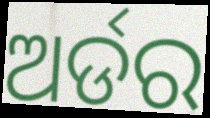
ଅର୍ଡର